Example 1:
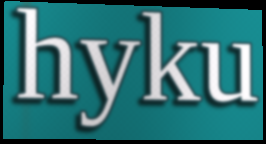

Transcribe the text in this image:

hyku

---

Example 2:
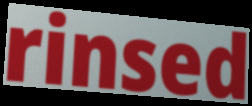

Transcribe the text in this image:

rinsed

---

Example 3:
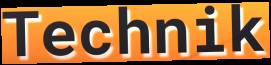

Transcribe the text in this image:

Technik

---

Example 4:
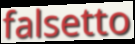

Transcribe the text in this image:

falsetto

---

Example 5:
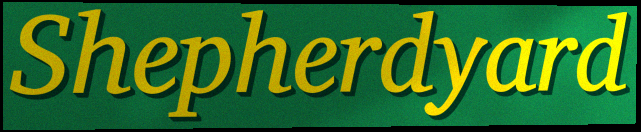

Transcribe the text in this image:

Shepherdyard